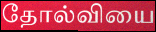
தோல்வியை